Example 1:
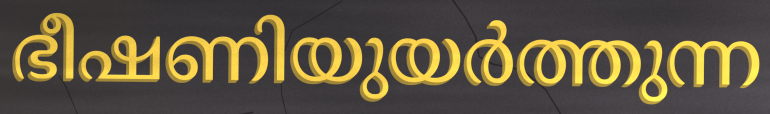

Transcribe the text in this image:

ഭീഷണിയുയർത്തുന്ന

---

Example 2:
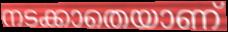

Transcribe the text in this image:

നടക്കാതെയാണ്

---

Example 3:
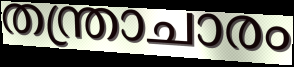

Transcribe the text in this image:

തന്ത്രാചാരം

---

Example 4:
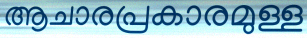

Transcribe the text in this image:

ആചാരപ്രകാരമുള്ള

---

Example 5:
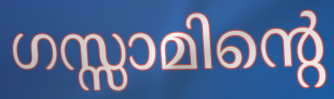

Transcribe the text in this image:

ഗസ്സാമിന്റെ